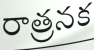
రాత్రనక